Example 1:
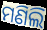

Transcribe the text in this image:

ମଣିଲି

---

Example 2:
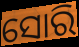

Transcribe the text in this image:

ସୋରି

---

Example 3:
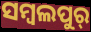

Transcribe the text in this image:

ସମ୍ବଲପୁର୍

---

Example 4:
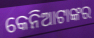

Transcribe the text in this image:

କେନିଆଟାଙ୍କର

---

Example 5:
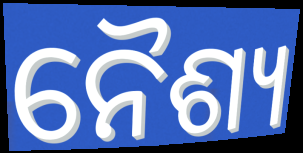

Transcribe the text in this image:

ନୈଶ୍ୟ